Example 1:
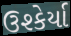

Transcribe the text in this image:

ઉશ્કેર્યા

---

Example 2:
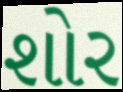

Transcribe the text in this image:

શોર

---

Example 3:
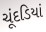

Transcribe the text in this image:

ચૂંદડિયાં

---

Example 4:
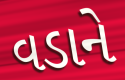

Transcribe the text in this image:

વડાને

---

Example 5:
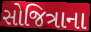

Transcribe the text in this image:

સોજિત્રાના